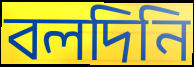
বলদিনি